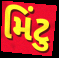
મિંટુ